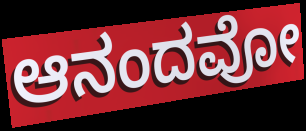
ಆನಂದವೋ